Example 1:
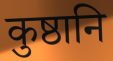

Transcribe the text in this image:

कुष्ठानि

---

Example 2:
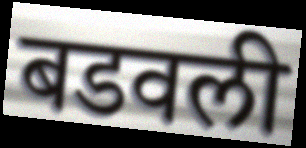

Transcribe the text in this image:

बडवली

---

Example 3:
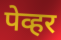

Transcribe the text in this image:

पेव्हर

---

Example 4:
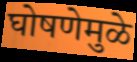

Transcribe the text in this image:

घोषणेमुळे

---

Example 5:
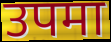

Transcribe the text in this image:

उपमा